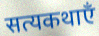
सत्यकथाएँ